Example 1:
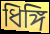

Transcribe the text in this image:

ধিঙ্গি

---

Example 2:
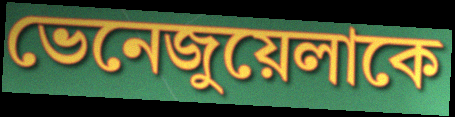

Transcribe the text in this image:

ভেনেজুয়েলাকে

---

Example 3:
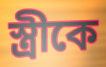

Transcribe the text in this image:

স্ত্রীকে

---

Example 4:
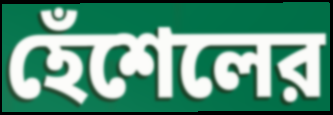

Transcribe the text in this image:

হেঁশেলের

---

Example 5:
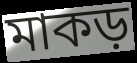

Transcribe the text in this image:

মাকড়